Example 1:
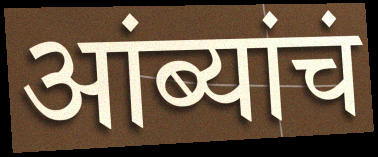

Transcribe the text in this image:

आंब्यांचं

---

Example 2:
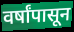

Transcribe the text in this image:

वर्षांपासून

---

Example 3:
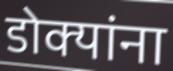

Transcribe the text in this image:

डोक्यांना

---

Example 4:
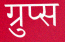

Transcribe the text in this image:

ग्रुप्स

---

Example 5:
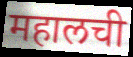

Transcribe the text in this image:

महालची